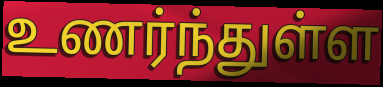
உணர்ந்துள்ள